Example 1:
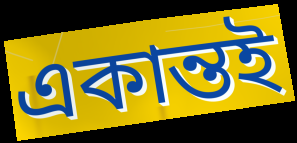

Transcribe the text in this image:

একান্তই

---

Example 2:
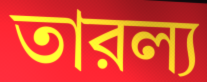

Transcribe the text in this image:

তারল্য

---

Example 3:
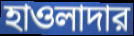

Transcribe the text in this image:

হাওলাদার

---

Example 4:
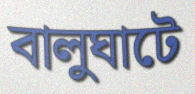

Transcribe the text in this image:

বালুঘাটে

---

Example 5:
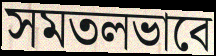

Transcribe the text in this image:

সমতলভাবে